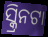
ସ୍କ୍ରିନଟା